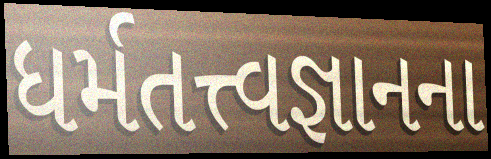
ધર્મતત્ત્વજ્ઞાનના